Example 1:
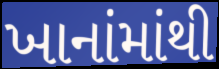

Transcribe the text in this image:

ખાનાંમાંથી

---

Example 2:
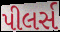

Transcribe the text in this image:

પીલર્સ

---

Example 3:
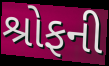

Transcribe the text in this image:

શ્રોફની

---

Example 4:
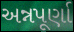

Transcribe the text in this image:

અન્નપૂર્ણા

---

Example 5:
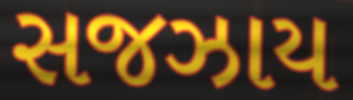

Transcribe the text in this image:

સજઝાય